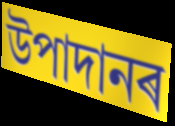
উপাদানৰ